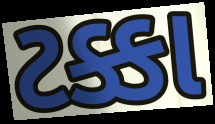
ટક્કા